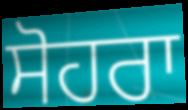
ਸੋਹਰਾ